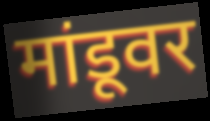
मांडूवर